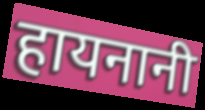
हायनानी